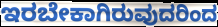
ಇರಬೇಕಾಗಿರುವುದರಿಂದ